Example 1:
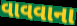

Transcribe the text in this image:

વાવવાના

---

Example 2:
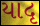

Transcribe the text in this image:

યાદૃ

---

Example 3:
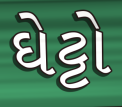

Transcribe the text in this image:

ઘેટ્ટો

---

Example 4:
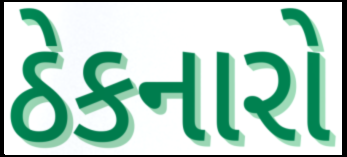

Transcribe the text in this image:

ઠેકનારો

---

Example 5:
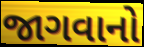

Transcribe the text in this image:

જાગવાનો